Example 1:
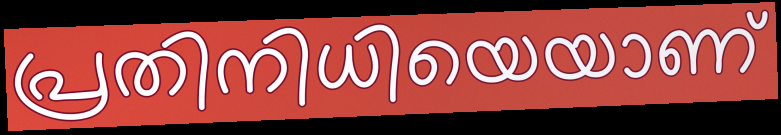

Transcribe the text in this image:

പ്രതിനിധിയെയാണ്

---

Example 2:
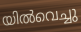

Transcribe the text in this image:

യിൽവെച്ചു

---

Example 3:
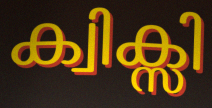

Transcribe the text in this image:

ക്വിക്സി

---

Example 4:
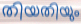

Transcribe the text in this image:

തിയതിയും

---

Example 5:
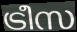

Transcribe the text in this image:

ട്രീസ